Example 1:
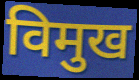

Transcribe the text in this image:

विमुख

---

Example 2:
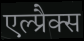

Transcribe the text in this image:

एल्प्रैक्स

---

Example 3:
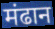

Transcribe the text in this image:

मंढान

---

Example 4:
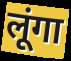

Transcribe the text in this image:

लूंगा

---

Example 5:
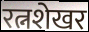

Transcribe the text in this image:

रत्नशेखर